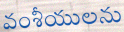
వంశీయులను